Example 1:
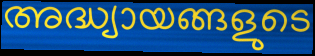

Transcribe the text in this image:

അദ്ധ്യായങ്ങളുടെ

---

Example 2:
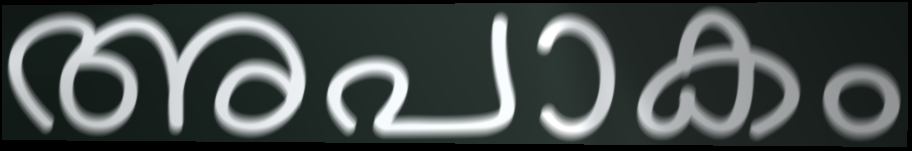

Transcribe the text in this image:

അപാകം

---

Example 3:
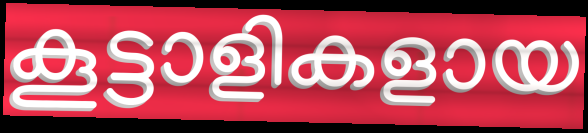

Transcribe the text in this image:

കൂട്ടാളികളായ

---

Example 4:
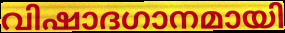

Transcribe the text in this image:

വിഷാദഗാനമായി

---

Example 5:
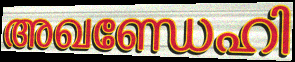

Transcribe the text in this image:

അഖണ്ഡേഹി